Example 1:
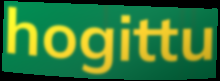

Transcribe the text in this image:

hogittu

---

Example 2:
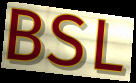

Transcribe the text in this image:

BSL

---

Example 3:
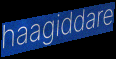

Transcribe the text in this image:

haagiddare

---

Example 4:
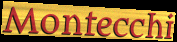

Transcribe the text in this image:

Montecchi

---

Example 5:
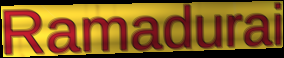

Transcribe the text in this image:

Ramadurai